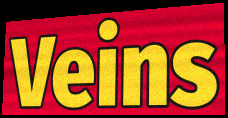
Veins